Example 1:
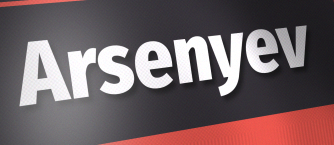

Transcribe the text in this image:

Arsenyev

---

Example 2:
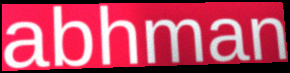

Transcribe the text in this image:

abhman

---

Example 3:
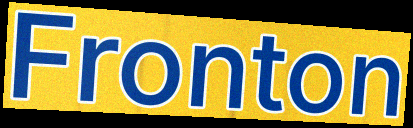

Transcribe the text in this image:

Fronton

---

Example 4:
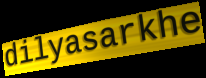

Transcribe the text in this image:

dilyasarkhe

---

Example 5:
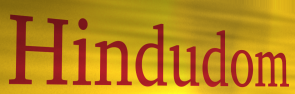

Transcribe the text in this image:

Hindudom